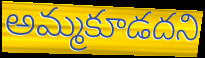
అమ్మకూడదని